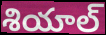
శియాల్